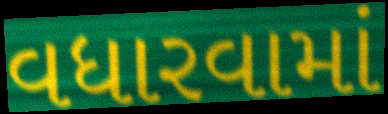
વધારવામાં